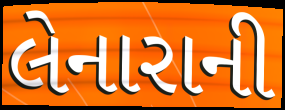
લેનારાની